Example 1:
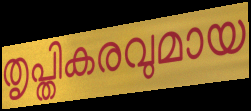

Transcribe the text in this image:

തൃപ്തികരവുമായ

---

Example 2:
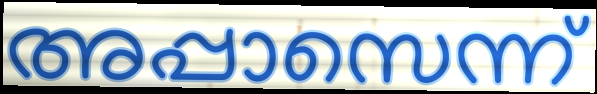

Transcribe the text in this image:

അപ്പാസെന്ന്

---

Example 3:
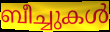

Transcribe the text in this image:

ബീച്ചുകൾ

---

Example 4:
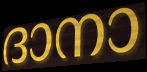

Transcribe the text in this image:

ദാനാ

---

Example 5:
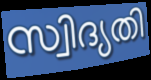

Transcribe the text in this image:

സ്വിദ്യതി